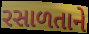
રસાળતાને